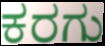
ಕರಗು